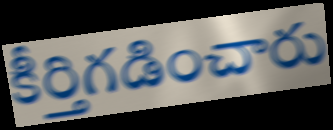
కీర్తిగడించారు